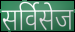
सर्विसेज